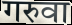
गरुवा